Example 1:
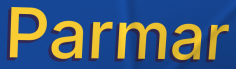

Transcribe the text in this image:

Parmar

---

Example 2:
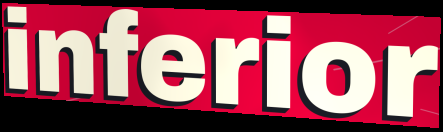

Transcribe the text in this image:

inferior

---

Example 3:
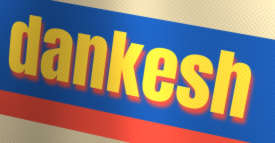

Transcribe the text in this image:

dankesh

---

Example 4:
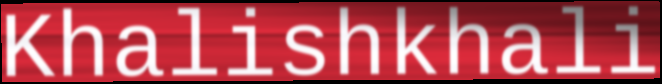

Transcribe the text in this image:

Khalishkhali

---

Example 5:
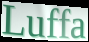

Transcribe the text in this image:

Luffa